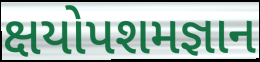
ક્ષયોપશમજ્ઞાન